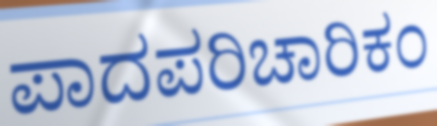
ಪಾದಪರಿಚಾರಿಕಂ